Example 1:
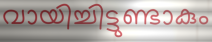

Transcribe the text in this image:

വായിച്ചിട്ടുണ്ടാകും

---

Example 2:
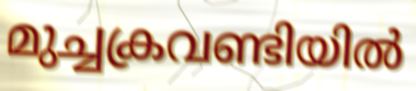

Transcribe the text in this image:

മുച്ചക്രവണ്ടിയിൽ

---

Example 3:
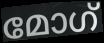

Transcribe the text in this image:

മോഗ്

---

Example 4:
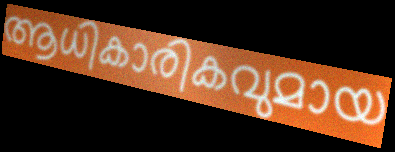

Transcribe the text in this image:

ആധികാരികവുമായ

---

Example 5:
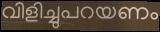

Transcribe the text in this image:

വിളിച്ചുപറയണം